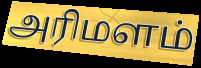
அரிமளம்